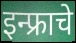
इन्फ्राचे